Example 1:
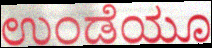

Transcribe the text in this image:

ಉಂಡೆಯೂ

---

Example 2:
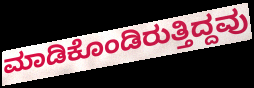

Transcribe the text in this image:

ಮಾಡಿಕೊಂಡಿರುತ್ತಿದ್ದವು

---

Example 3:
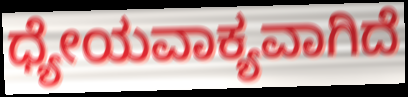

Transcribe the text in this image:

ಧ್ಯೇಯವಾಕ್ಯವಾಗಿದೆ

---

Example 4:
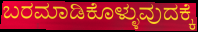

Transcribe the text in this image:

ಬರಮಾಡಿಕೊಳ್ಳುವುದಕ್ಕೆ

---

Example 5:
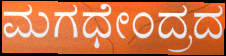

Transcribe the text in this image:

ಮಗಧೇಂದ್ರದ